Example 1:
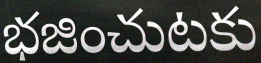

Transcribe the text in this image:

భజించుటకు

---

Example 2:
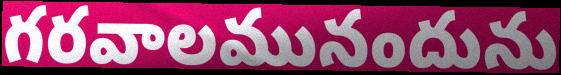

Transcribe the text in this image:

గరవాలమునందును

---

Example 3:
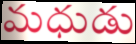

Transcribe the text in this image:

మధుడు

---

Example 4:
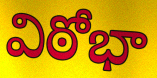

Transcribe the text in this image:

విఠోభా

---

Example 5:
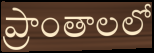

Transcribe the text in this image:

ప్రాంతాలలో